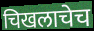
चिखलाचेच